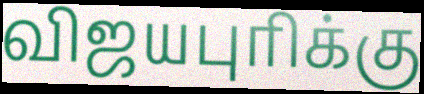
விஜயபுரிக்கு